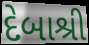
દેબાશ્રી